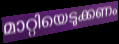
മാറ്റിയെടുക്കണം